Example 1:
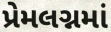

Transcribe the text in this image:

પ્રેમલગ્નમાં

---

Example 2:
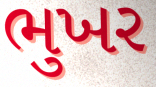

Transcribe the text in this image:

ભુખર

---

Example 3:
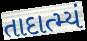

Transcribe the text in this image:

તાદાત્મ્યં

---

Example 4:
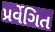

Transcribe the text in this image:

પ્રર્વેગિત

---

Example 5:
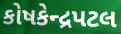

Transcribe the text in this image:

કોષકેન્દ્રપટલ